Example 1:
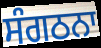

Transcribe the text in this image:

ਸੰਗਠਨਾ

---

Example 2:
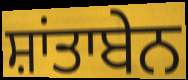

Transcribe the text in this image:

ਸ਼ਾਂਤਾਬੇਨ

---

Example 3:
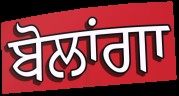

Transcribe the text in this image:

ਬੋਲਾਂਗਾ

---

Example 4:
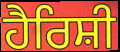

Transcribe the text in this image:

ਹੈਰਿਸ਼ੀ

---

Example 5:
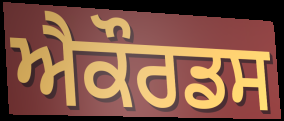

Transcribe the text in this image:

ਐਕੌਰਡਸ